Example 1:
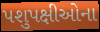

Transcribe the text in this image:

પશુપક્ષીઓના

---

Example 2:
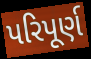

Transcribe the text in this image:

પરિપૂર્ણ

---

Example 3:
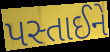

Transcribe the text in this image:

પસ્તાઈને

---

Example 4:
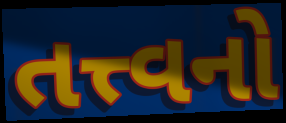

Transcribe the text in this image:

તત્ત્વનો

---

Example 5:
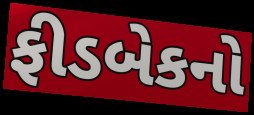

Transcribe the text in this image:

ફીડબેકનો